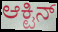
ಆಕ್ಟಿನ್